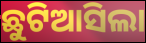
ଛୁଟିଆସିଲା